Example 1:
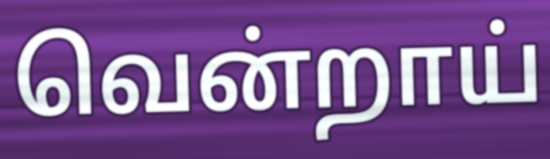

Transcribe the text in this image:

வென்றாய்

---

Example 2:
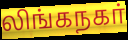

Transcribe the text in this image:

லிங்கநகர்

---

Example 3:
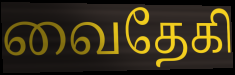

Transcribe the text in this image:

வைதேகி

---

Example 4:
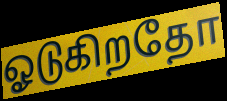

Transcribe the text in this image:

ஓடுகிறதோ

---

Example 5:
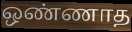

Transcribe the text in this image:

ஒண்ணாத